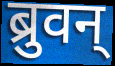
ब्रुवन्